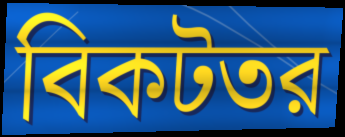
বিকটতর